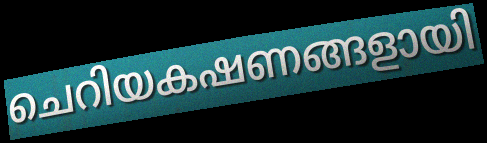
ചെറിയകഷണങ്ങളായി